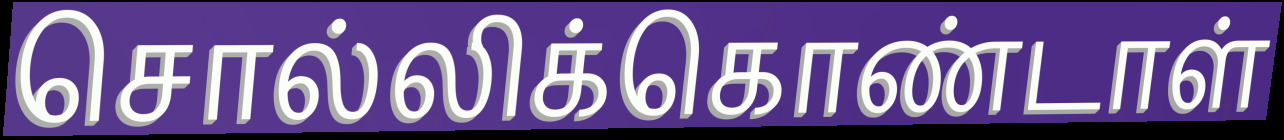
சொல்லிக்கொண்டாள்